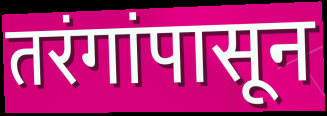
तरंगांपासून